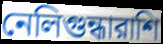
নেলিগুন্ধারাশি